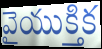
వైయుక్తిక